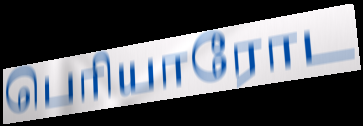
பெரியாரோட